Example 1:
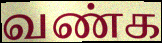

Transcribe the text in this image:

வண்க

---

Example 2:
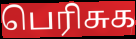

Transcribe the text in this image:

பெரிசுக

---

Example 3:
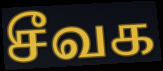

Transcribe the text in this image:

சீவக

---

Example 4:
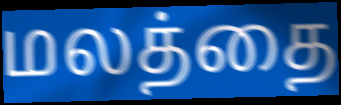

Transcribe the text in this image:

மலத்தை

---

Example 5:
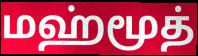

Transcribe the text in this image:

மஹ்மூத்